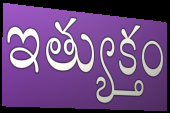
ఇత్యుక్తం